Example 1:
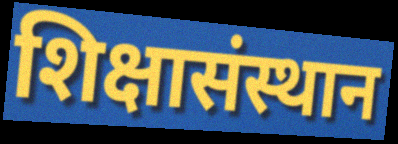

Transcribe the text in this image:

शिक्षासंस्थान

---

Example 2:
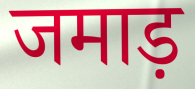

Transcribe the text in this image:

जमाड़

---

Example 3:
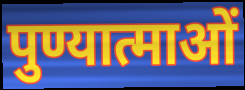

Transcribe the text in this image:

पुण्यात्माओं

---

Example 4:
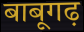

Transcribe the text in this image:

बाबूगढ़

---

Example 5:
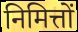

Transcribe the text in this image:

निमित्तों